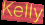
Kelly